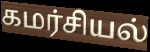
கமர்சியல்